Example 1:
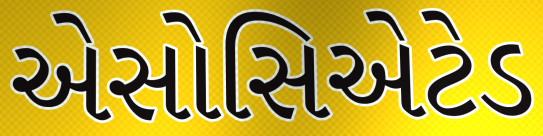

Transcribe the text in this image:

એસોસિએટેડ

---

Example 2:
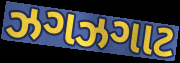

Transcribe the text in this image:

ઝગઝગાટ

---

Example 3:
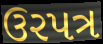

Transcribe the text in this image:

ઉરપત્ર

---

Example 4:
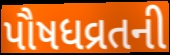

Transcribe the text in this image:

પૌષધવ્રતની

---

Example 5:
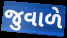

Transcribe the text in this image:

જુવાળે